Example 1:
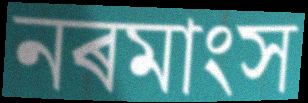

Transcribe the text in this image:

নৰমাংস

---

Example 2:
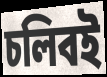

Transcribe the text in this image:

চলিবই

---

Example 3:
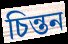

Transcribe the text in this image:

চিন্তন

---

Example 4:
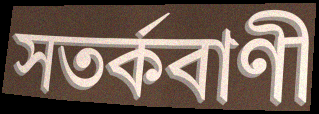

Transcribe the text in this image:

সতৰ্কবাণী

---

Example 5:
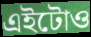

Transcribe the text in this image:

এইটোও